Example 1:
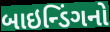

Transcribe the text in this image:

બાઇન્ડિંગનો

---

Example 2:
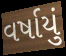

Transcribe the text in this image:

વર્ષાયું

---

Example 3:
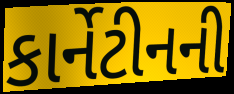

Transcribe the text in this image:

કાર્નેટીનની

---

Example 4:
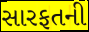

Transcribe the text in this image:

સારફતની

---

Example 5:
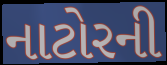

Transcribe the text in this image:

નાટોરની